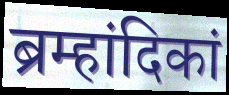
ब्रम्हांदिकां